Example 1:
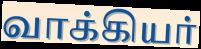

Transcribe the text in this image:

வாக்கியர்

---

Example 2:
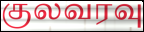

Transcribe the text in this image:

குலவரவு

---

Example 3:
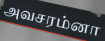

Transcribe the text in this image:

அவசரம்னா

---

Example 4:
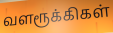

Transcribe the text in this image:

வளரூக்கிகள்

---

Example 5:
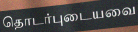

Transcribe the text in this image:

தொடர்புடையவை